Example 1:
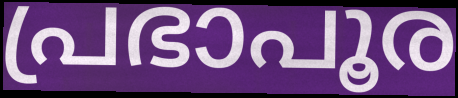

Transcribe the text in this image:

പ്രഭാപൂര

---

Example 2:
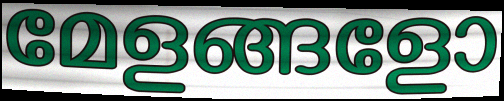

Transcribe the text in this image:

മേളങ്ങളോ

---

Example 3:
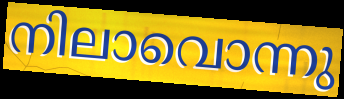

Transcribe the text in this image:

നിലാവൊന്നു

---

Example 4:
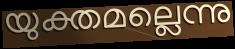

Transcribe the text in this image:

യുക്തമല്ലെന്നു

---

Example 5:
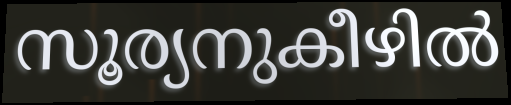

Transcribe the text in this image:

സൂര്യനുകീഴിൽ